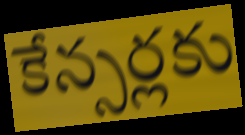
కేన్సర్లకు